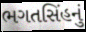
ભગતસિંહનું